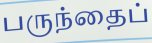
பருந்தைப்